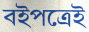
বইপত্রেই